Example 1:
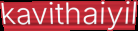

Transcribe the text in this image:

kavithaiyil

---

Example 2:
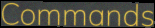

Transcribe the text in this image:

Commands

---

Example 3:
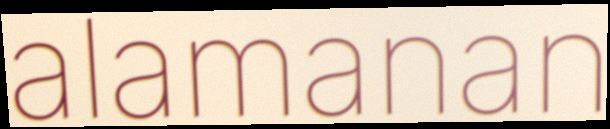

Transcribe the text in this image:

alamanan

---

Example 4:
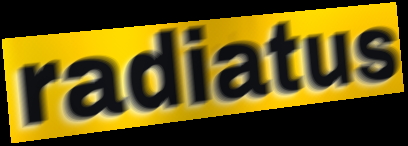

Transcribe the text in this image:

radiatus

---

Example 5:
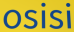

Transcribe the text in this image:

osisi